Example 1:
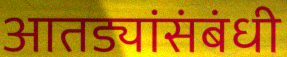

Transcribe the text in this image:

आतड्यांसंबंधी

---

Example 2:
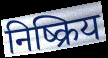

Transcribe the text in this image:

निष्क्रिय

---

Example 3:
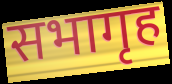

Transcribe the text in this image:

सभागृह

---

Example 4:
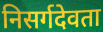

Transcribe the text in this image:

निसर्गदेवता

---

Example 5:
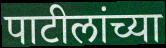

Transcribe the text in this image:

पाटीलांच्या